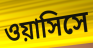
ওয়াসিসে